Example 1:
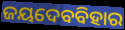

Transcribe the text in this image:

ଜୟଦେବବିହାର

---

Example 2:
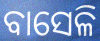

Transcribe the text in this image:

ବାସେଳି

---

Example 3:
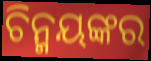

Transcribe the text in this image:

ଚିନ୍ମୟଙ୍କର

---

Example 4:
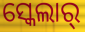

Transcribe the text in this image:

ସ୍କେଲାର୍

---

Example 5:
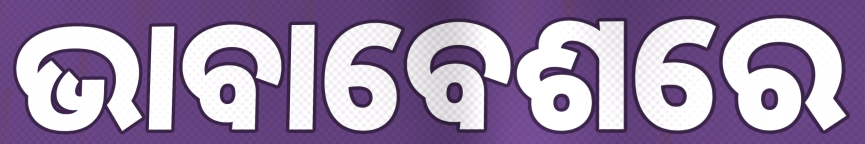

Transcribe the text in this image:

ଭାବାବେଶରେ